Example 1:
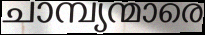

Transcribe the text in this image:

ചാമ്പ്യന്മാരെ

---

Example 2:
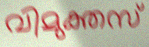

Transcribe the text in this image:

വിമുക്തസ്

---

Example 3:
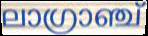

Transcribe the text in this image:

ലാഗ്രാഞ്ച്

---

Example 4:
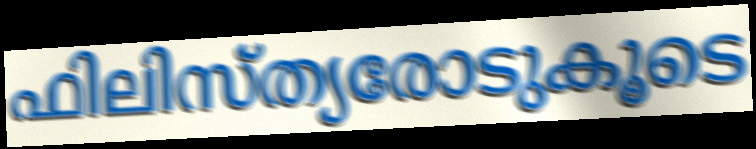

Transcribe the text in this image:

ഫിലിസ്ത്യരോടുകൂടെ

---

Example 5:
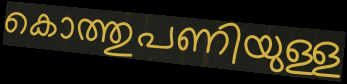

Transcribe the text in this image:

കൊത്തുപണിയുള്ള